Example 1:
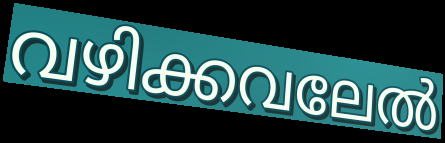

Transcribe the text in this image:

വഴിക്കവലേൽ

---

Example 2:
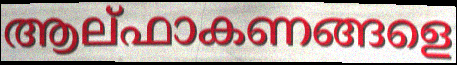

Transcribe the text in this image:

ആല്ഫാകണങ്ങളെ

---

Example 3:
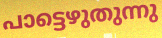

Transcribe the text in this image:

പാട്ടെഴുതുന്നു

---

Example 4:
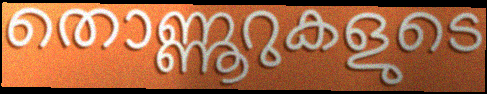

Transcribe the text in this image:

തൊണ്ണൂറുകളുടെ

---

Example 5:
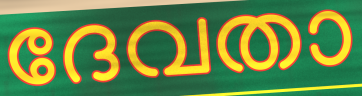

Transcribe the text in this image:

ദേവതാ